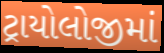
ટ્રાયોલોજીમાં